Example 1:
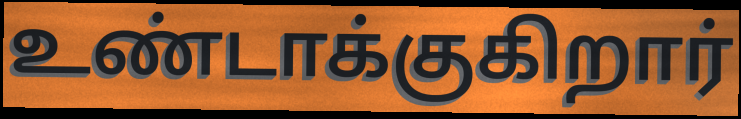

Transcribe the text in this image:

உண்டாக்குகிறார்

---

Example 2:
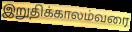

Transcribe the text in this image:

இறுதிக்காலம்வரை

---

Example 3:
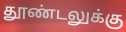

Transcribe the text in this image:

தூண்டலுக்கு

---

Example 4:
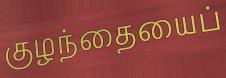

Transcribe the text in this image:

குழந்தையைப்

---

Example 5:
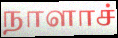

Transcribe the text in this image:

நாளாச்